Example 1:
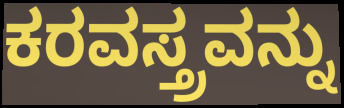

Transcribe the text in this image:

ಕರವಸ್ತ್ರವನ್ನು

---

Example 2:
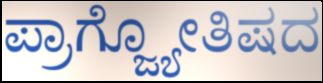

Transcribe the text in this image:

ಪ್ರಾಗ್ಜ್ಯೋತಿಷದ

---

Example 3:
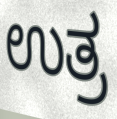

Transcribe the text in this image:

ಉತ್ರ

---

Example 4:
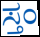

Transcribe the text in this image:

ಸ್ತಂ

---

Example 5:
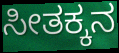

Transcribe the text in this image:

ಸೀತಕ್ಕನ